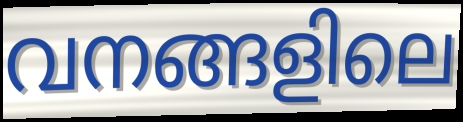
വനങ്ങളിലെ